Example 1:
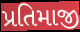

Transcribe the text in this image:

પ્રતિમાજી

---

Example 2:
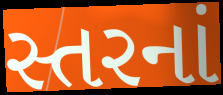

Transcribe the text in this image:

સ્તરનાં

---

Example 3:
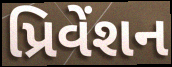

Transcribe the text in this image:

પ્રિવેંશન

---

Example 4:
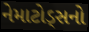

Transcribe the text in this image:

નેમાટોડ્સનો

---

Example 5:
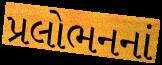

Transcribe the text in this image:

પ્રલોભનનાં